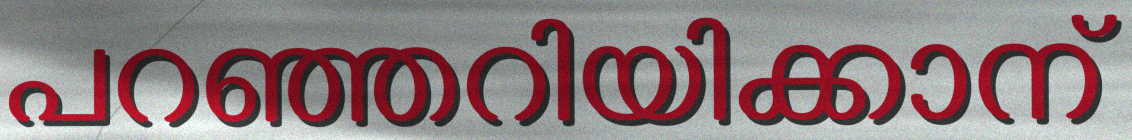
പറഞ്ഞറിയിക്കാന്